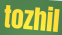
tozhil